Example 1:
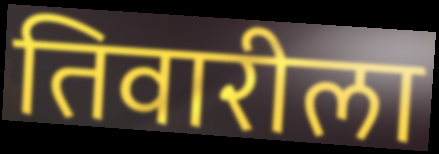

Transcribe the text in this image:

तिवारीला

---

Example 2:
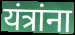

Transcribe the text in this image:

यंत्रांना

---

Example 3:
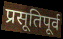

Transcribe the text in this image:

प्रसूतिपूर्व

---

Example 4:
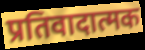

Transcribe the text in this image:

प्रतिवादात्मक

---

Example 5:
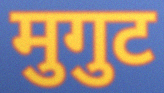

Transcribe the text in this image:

मुगुट